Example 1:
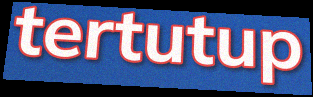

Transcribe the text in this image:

tertutup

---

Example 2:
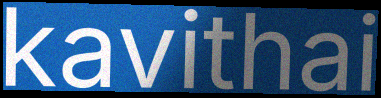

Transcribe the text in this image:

kavithai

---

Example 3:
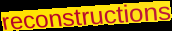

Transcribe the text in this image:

reconstructions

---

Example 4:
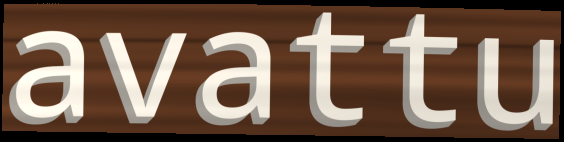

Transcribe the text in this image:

avattu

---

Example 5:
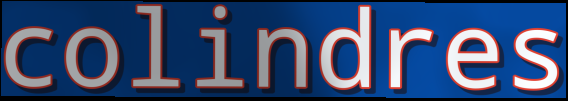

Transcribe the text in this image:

colindres